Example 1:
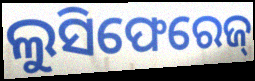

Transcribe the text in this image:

ଲୁସିଫେରେଜ୍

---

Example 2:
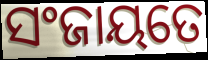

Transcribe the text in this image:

ସଂଜାୟତେ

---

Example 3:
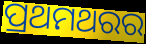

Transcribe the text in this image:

ପ୍ରଥମଥରର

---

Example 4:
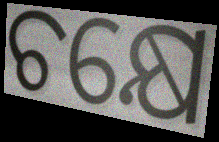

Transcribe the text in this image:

ଚକ୍ଷେ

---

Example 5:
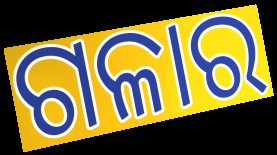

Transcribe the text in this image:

ଗଳାର